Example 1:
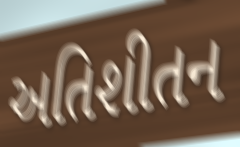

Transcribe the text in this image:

અતિશીતન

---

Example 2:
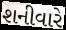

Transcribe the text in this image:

શનીવારે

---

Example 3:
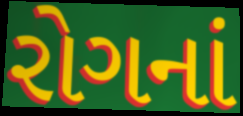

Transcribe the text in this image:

રોગનાં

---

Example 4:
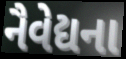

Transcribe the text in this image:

નૈવેદ્યના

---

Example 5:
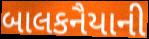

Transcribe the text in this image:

બાલકનૈયાની